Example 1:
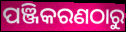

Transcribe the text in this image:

ପଞ୍ଜିକରଣଠାରୁ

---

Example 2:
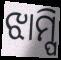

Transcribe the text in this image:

ଝାମ୍ପି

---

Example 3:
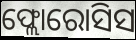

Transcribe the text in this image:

ଫ୍ଲୋରୋସିସ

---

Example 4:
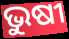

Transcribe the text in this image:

ଭୁଷୀ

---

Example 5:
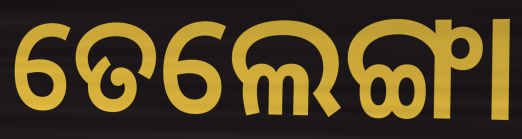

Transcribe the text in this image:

ତେଲେଙ୍ଗା